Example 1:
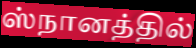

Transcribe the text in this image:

ஸ்நானத்தில்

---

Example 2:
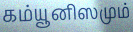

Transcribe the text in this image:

கம்யூனிஸமும்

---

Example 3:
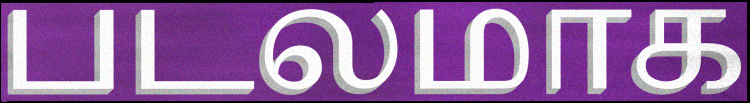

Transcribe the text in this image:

படலமாக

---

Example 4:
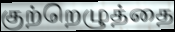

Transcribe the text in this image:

குற்றெழுத்தை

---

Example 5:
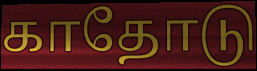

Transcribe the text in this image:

காதோடு